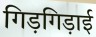
गिड़गिड़ाई